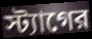
স্ট্যাগের